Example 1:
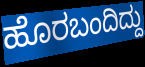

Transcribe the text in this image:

ಹೊರಬಂದಿದ್ದು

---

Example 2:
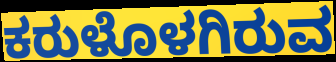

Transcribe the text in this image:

ಕರುಳೊಳಗಿರುವ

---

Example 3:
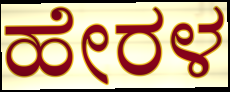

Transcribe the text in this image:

ಹೇರಳ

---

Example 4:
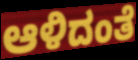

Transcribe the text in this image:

ಆಳಿದಂತೆ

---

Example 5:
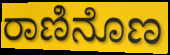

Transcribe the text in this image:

ರಾಣಿನೊಣ